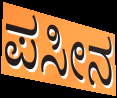
ಪಸೀನ